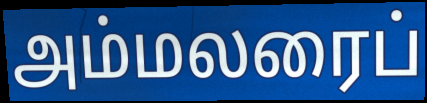
அம்மலரைப்